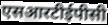
एसआरटीईपीसी